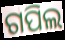
ଗପିଲ